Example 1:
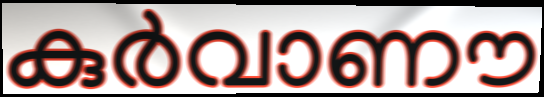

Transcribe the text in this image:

കുർവാണൗ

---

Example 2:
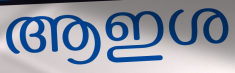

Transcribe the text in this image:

ആഇശ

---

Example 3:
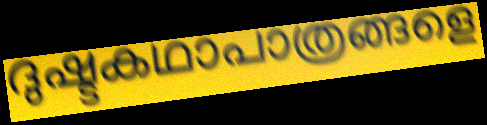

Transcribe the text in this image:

ദുഷ്ടകഥാപാത്രങ്ങളെ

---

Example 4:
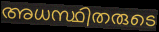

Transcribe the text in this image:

അധസ്ഥിതരുടെ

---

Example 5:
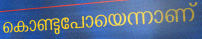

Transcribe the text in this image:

കൊണ്ടുപോയെന്നാണ്